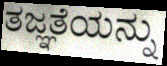
ತಜ್ಞತೆಯನ್ನು